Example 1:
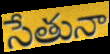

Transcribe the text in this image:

సేతునా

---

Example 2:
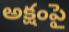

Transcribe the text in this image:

అక్షంపై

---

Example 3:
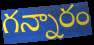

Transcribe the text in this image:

గన్నారం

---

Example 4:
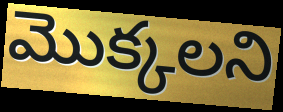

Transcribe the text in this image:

మొక్కలని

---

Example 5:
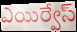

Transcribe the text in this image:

ఎయిర్వేస్